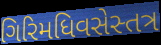
ગિરિમધિવસેસ્તત્ર